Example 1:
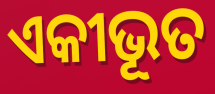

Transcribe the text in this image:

ଏକୀଭୂତ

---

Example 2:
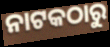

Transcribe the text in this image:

ନାଟକଠାରୁ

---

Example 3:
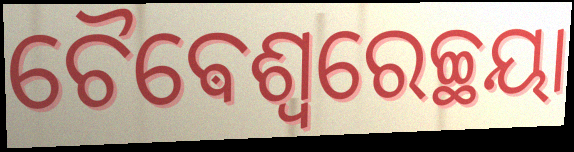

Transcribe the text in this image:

ଚୈଵେଶ୍ଵରେଚ୍ଛୟା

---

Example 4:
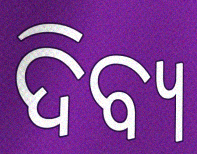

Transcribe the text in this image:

ଦିବ୍ୟ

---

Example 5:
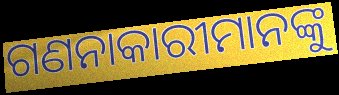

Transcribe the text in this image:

ଗଣନାକାରୀମାନଙ୍କୁ